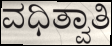
ವಧಿತ್ವಾತಿ